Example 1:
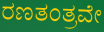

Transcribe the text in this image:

ರಣತಂತ್ರವೇ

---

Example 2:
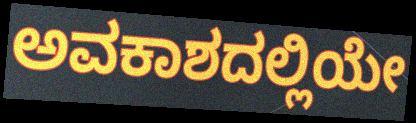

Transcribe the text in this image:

ಅವಕಾಶದಲ್ಲಿಯೇ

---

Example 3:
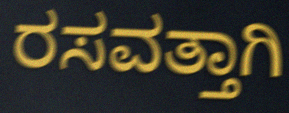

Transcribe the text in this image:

ರಸವತ್ತಾಗಿ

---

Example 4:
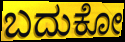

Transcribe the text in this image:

ಬದುಕೋ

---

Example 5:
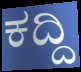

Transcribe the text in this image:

ಕದ್ದಿ